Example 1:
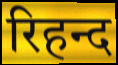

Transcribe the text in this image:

रिहन्द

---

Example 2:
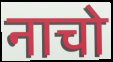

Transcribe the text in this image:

नाचो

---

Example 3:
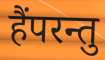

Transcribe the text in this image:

हैंपरन्तु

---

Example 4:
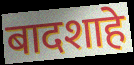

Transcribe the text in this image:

बादशाहे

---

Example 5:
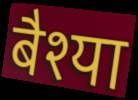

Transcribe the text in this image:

बैश्या